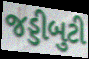
જડ્ડીબુટી